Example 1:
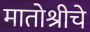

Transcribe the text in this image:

मातोश्रीचे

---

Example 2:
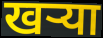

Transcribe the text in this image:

खऱ्या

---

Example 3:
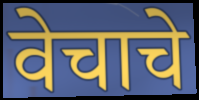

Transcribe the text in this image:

वेचाचे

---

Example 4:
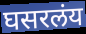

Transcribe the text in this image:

घसरलंय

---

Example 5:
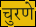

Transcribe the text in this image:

चुरणे